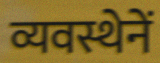
व्यवस्थेनें